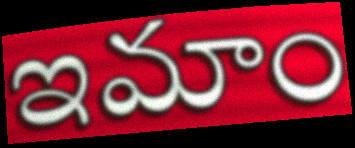
ఇమాం